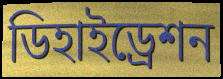
ডিহাইড্রেশন